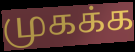
முகக்க